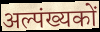
अल्पंख्यकों